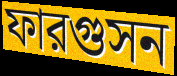
ফারগুসন